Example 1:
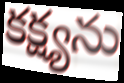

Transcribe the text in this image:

కక్ష్యను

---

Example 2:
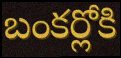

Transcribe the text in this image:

బంకర్లోకి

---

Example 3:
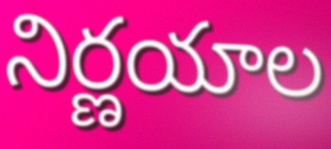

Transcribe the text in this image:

నిర్ణయాల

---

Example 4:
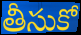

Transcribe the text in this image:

తీసుకో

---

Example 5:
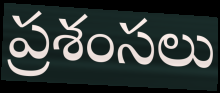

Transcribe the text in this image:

ప్రశంసలు